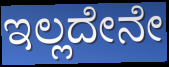
ಇಲ್ಲದೇನೇ